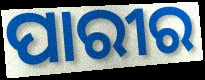
ପାରୀର